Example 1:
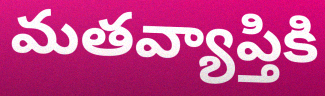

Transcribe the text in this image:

మతవ్యాప్తికి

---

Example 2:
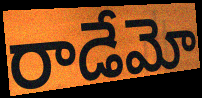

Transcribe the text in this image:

రాడేమో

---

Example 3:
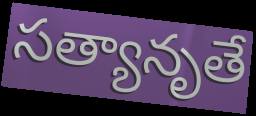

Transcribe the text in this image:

సత్యానృతే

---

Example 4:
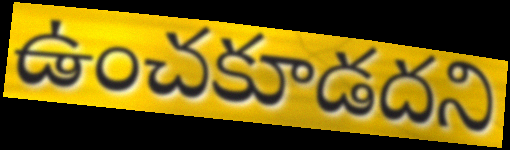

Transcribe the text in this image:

ఉంచకూడదని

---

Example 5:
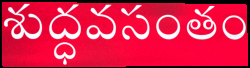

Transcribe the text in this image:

శుద్ధవసంతం